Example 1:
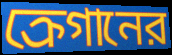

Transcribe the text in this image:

ক্রেগানের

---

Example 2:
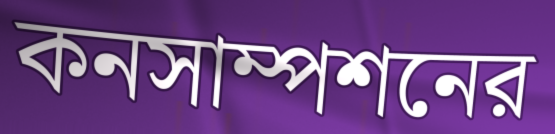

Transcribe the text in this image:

কনসাম্পশনের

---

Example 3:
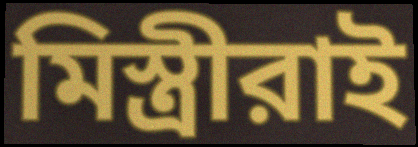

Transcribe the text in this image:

মিস্ত্রীরাই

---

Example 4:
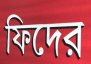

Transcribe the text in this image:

ফিদের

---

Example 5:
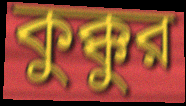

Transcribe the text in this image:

কুক্কুর